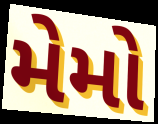
મેમો